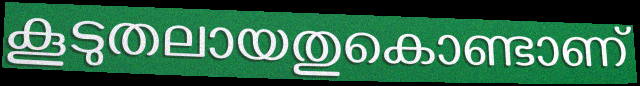
കൂടുതലായതുകൊണ്ടാണ്